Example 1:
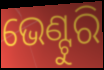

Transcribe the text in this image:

ଭେଣ୍ଟୁରି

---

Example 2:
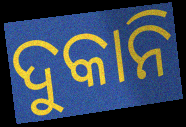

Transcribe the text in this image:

ଦୁକାନି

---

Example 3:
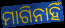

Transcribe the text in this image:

ମାଗିନାହିଁ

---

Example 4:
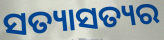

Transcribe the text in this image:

ସତ୍ୟାସତ୍ୟର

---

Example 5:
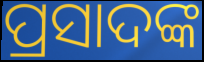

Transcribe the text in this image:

ପ୍ରସାଦଙ୍କ